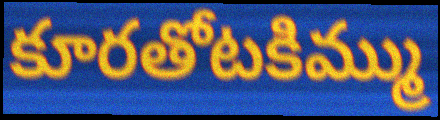
కూరతోటకిమ్ము